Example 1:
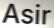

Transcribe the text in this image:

Asir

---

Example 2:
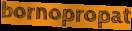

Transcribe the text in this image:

bornopropat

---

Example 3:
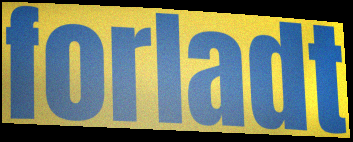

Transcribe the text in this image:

forladt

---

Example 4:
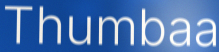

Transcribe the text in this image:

Thumbaa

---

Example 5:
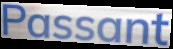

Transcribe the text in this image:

Passant